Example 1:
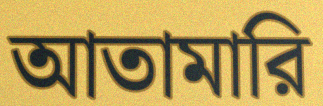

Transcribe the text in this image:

আতামারি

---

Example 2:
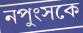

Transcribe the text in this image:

নপুংসকে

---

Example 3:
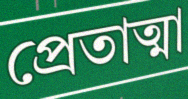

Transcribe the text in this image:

প্রেতাত্মা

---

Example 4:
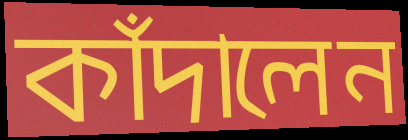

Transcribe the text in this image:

কাঁদালেন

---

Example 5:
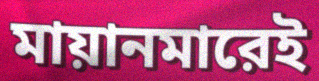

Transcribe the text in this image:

মায়ানমারেই